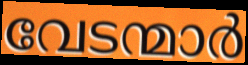
വേടന്മാർ